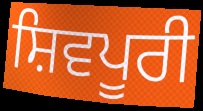
ਸ਼ਿਵਪੂਰੀ